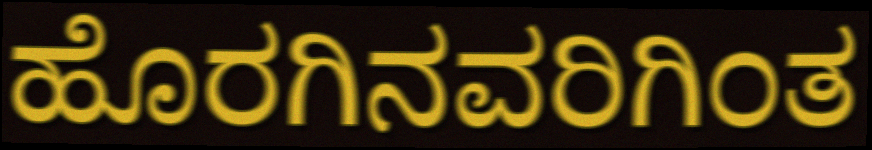
ಹೊರಗಿನವರಿಗಿಂತ